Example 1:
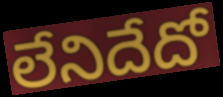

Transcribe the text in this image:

లేనిదేదో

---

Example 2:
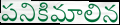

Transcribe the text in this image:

పనికిమాలిన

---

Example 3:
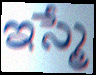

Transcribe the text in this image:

ఇస్మే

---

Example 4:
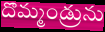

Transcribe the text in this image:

దొమ్మండ్రును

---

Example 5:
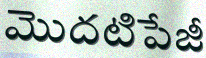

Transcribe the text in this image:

మొదటిపేజీ